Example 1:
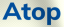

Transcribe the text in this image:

Atop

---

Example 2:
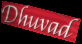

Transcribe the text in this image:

Dhuvad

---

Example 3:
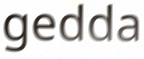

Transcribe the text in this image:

gedda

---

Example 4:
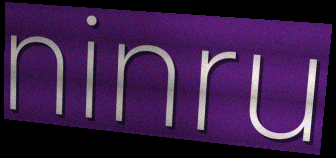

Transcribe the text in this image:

ninru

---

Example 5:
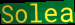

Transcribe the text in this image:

Solea